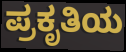
ಪ್ರಕೃತಿಯ